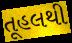
તૂહલથી